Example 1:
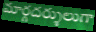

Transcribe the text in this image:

మార్గదర్శులుగా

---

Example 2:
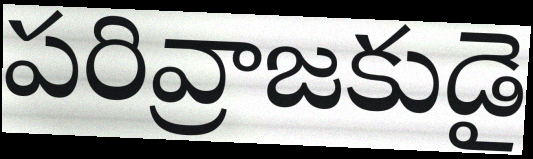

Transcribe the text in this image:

పరివ్రాజకుడై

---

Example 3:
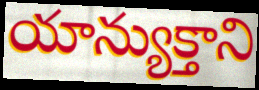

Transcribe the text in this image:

యాన్యుక్తాని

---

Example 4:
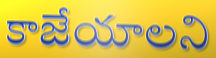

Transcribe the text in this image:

కాజేయాలని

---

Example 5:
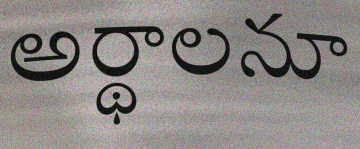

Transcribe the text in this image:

అర్థాలనూ